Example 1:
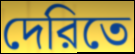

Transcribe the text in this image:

দেরিতে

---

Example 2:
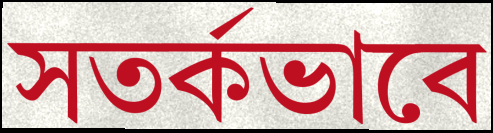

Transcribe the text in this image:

সতর্কভাবে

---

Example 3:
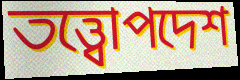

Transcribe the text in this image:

তত্ত্বোপদেশ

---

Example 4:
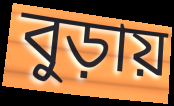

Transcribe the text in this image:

বুড়ায়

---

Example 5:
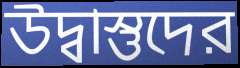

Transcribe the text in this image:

উদ্বাস্তুদের